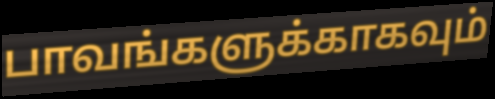
பாவங்களுக்காகவும்